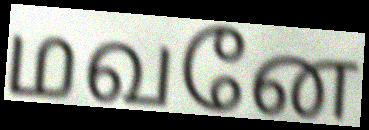
மவனே